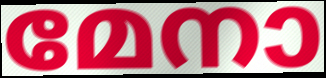
മേനാ